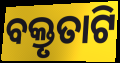
ବକ୍ତୃତାଟି